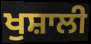
ਖੁਸ਼ਾਲੀ